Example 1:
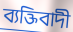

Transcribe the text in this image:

ব্যক্তিবাদী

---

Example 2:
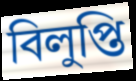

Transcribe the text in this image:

বিলুপ্তি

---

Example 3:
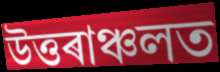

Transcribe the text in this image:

উত্তৰাঞ্চলত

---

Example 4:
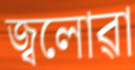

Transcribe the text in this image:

জ্বলোৱা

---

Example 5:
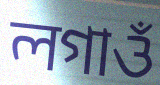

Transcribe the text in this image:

লগাওঁ